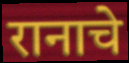
रानाचे